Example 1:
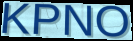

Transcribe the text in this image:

KPNO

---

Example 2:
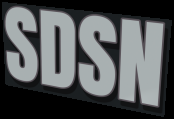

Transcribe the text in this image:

SDSN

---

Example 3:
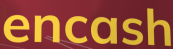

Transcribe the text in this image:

encash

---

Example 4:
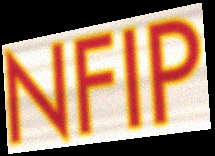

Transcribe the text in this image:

NFIP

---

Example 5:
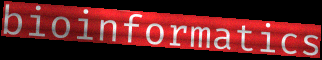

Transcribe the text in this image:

bioinformatics